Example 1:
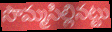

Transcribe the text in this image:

సొమ్మసిల్లినట్టు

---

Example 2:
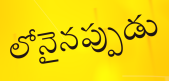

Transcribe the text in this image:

లోనైనప్పుడు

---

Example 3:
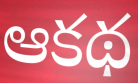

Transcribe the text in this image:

ఆకథ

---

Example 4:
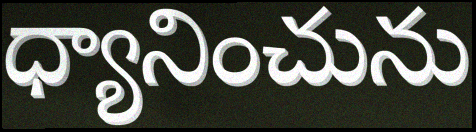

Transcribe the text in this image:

ధ్యానించును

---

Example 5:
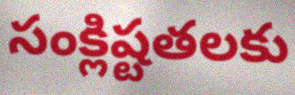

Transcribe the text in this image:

సంక్లిష్టతలకు